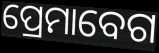
ପ୍ରେମାବେଗ